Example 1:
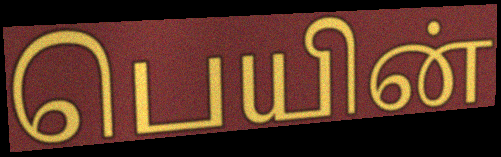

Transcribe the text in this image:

பெயின்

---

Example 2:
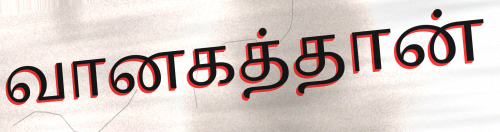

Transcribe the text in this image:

வானகத்தான்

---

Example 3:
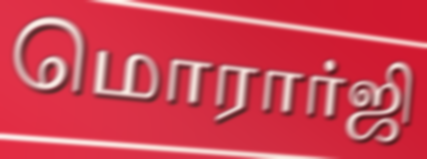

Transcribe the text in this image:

மொரார்ஜி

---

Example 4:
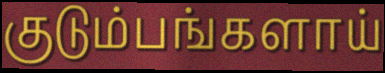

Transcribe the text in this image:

குடும்பங்களாய்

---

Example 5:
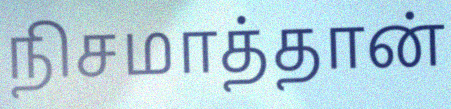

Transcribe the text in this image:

நிசமாத்தான்